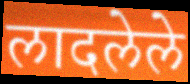
लादलेले